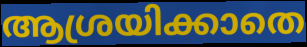
ആശ്രയിക്കാതെ